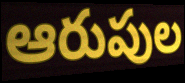
ఆరుపుల